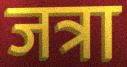
जत्रा